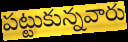
పట్టుకున్నవారు